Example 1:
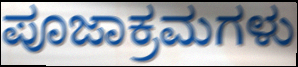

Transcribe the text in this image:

ಪೂಜಾಕ್ರಮಗಳು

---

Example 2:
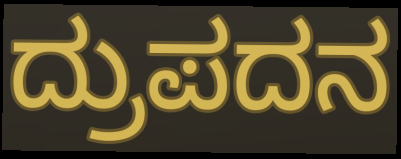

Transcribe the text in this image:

ದ್ರುಪದನ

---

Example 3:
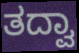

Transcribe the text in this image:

ತದ್ವಾ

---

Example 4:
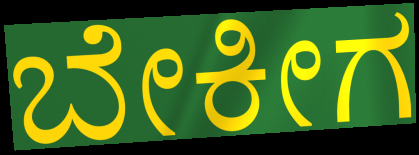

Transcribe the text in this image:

ಬೇಕೀಗ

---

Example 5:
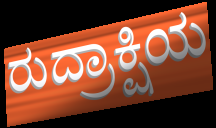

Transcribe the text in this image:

ರುದ್ರಾಕ್ಷಿಯ